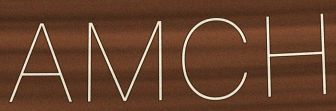
AMCH